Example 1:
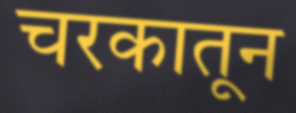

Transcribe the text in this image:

चरकातून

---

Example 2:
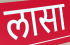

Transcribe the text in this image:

लासा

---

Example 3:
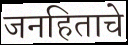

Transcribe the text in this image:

जनहिताचे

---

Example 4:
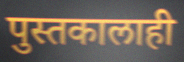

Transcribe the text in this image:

पुस्तकालाही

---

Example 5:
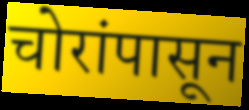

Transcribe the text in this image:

चोरांपासून